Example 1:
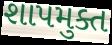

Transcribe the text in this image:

શાપમુક્ત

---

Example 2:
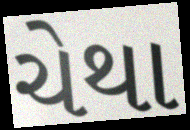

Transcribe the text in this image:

ચેથા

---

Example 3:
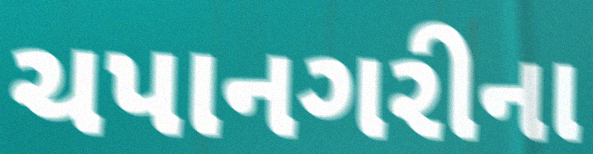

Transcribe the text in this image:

ચપાનગરીના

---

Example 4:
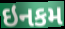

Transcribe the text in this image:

ઇનકમ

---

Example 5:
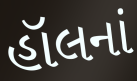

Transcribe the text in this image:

હૉલનાં